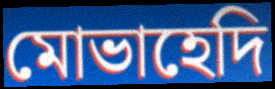
মোভাহেদি